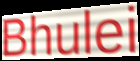
Bhulei